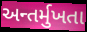
અન્તર્મુખતા